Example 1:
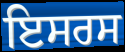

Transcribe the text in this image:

ਇਸਰਸ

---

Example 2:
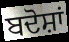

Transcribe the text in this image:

ਬਦੋਸ਼ਾਂ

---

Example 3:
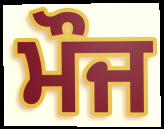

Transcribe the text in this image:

ਮੌਜ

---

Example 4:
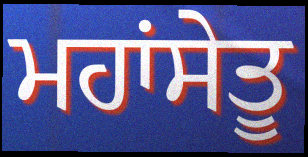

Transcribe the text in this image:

ਮਹਾਂਸੇਤੂ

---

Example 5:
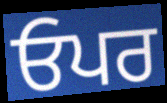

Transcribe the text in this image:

ਓਪਰ